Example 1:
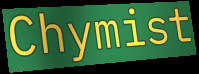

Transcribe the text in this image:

Chymist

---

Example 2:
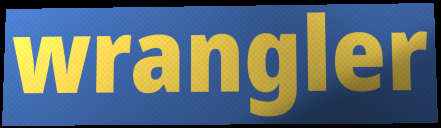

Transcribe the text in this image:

wrangler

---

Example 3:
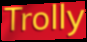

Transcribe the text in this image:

Trolly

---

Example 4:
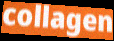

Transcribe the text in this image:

collagen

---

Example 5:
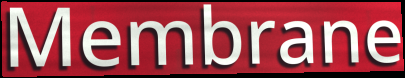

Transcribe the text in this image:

Membrane